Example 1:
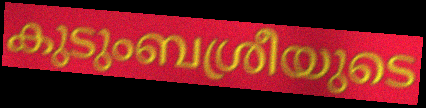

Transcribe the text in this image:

കുടുംബശ്രീയുടെ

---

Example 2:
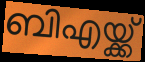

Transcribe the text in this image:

ബിഎയ്ക്ക്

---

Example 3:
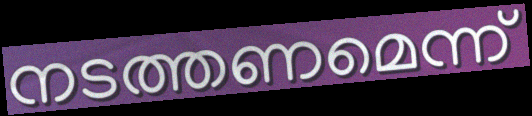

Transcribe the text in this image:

നടത്തണമെന്ന്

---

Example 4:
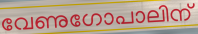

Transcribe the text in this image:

വേണുഗോപാലിന്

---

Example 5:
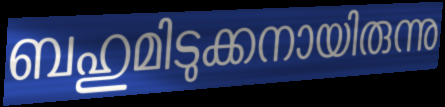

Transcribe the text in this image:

ബഹുമിടുക്കനായിരുന്നു